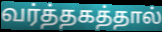
வர்த்தகத்தால்